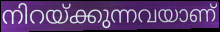
നിറയ്ക്കുന്നവയാണ്